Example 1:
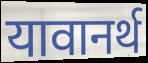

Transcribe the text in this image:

यावानर्थ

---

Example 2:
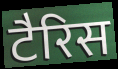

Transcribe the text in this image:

टैरिस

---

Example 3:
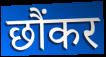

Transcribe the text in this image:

छौंकर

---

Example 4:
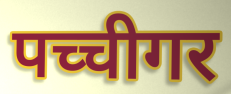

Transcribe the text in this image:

पच्चीगर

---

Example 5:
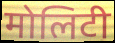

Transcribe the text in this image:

मोलिटी